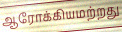
ஆரோக்கியமற்றது